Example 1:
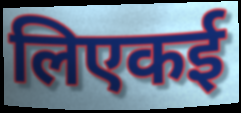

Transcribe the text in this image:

लिएकई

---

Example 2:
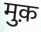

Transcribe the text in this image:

मुक़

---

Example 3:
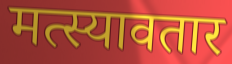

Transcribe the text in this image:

मत्स्यावतार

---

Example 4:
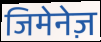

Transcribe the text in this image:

जिमेनेज़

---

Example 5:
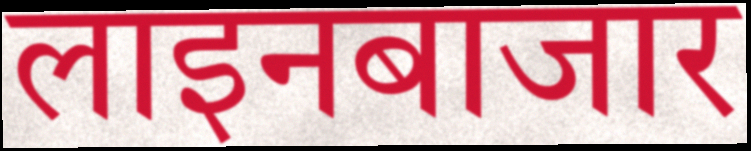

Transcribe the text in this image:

लाइनबाजार